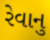
રેવાનુ